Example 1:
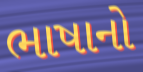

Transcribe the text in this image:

ભાષાનો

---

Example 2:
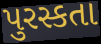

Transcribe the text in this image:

પુરસ્કતા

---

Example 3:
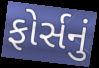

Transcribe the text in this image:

ફોર્સનું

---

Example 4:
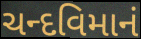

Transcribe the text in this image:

ચન્દવિમાનં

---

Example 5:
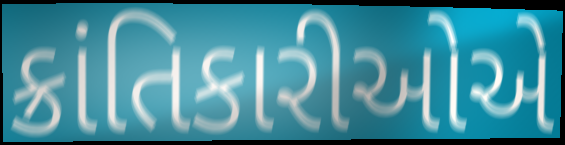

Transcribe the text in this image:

ક્રાંતિકારીઓએ